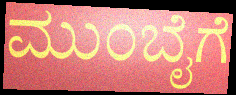
ಮುಂಬೈಗೆ